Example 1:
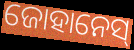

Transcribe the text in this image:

ଜୋହାନେସ୍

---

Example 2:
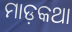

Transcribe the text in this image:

ମାଡ଼କଥା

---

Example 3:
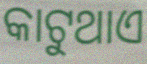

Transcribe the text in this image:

କାଟୁଥାଏ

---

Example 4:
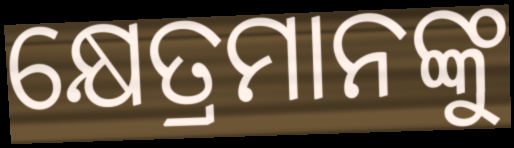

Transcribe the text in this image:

କ୍ଷେତ୍ରମାନଙ୍କୁ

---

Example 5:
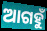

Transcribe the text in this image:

ଆଗହୁଁ